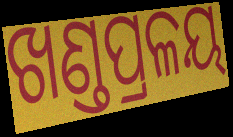
ଖଣ୍ଡପ୍ରଳୟ